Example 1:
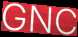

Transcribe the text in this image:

GNC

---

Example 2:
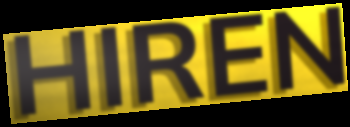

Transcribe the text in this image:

HIREN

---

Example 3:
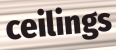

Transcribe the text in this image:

ceilings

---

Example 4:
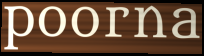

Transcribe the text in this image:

poorna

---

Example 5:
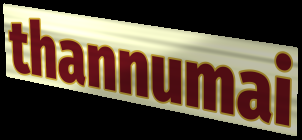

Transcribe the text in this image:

thannumai